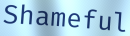
Shameful